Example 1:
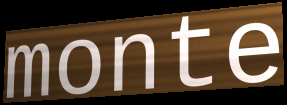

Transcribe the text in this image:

monte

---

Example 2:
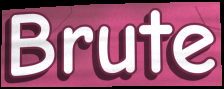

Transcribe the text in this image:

Brute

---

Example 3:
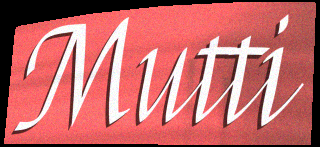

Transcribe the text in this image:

Mutti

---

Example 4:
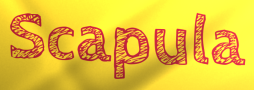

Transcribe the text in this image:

Scapula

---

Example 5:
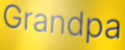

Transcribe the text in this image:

Grandpa